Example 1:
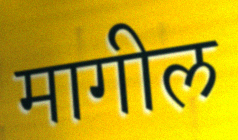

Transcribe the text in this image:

मागील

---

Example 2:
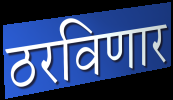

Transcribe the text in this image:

ठरविणार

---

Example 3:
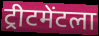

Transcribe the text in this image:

ट्रीटमेंटला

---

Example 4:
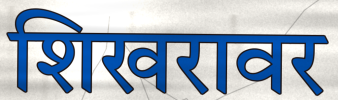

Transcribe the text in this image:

शिखरावर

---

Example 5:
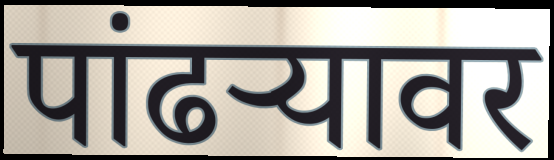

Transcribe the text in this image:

पांढर्‍यावर